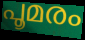
പൂമരം